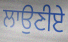
ਲਾਉਣੀਏ